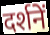
दर्शनें